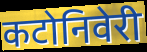
कटोनिवेरी